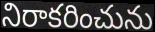
నిరాకరించును